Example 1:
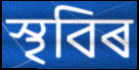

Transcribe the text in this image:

স্থবিৰ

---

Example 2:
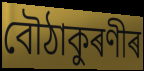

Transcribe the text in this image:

বৌঠাকুৰণীৰ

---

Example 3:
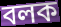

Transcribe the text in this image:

বলক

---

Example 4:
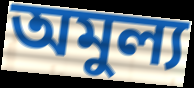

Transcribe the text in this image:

অমুল্য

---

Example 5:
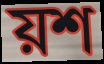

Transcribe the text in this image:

য়শ